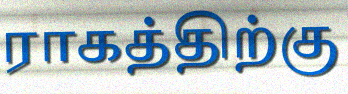
ராகத்திற்கு